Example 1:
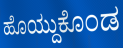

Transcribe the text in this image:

ಹೊಯ್ದುಕೊಂಡ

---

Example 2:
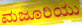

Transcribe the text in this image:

ಮಜೂರಿಯು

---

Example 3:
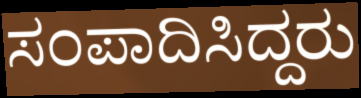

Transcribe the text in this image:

ಸಂಪಾದಿಸಿದ್ದರು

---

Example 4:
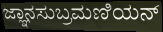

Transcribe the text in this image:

ಜ್ಞಾನಸುಬ್ರಮಣಿಯನ್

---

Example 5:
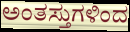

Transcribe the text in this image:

ಅಂತಸ್ತುಗಳಿಂದ